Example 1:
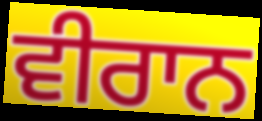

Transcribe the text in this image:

ਵੀਰਾਨ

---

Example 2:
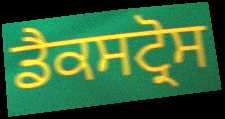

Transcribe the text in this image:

ਡੈਕਸਟ੍ਰੋਸ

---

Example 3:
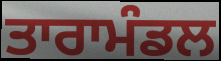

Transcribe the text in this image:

ਤਾਰਾਮੰਡਲ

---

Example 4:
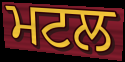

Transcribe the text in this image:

ਮਟਲ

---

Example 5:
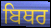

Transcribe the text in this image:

ਬਿਥਰ